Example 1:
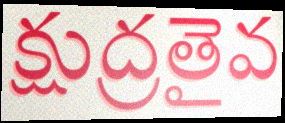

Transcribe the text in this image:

క్షుద్రతైవ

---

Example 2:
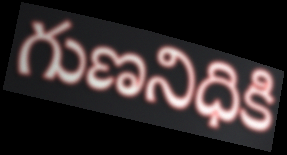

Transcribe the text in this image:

గుణనిధికి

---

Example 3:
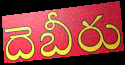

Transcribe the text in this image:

దెబీరు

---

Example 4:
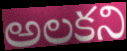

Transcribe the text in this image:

అలకని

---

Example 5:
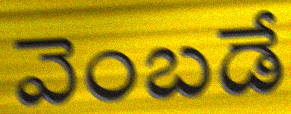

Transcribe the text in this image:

వెంబడే